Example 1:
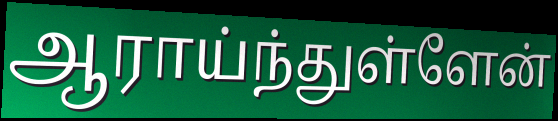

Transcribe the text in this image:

ஆராய்ந்துள்ளேன்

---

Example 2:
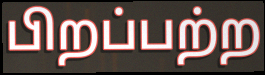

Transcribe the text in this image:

பிறப்பற்ற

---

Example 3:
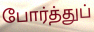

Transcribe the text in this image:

போர்த்துப்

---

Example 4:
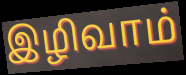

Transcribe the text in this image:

இழிவாம்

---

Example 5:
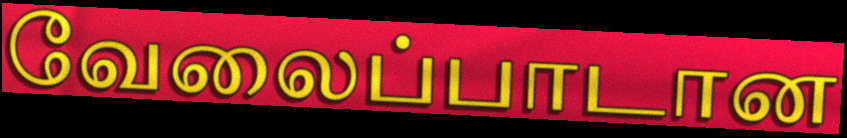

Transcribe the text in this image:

வேலைப்பாடான